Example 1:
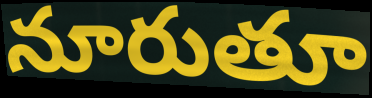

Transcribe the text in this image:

నూరుతూ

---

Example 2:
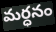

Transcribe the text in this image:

మర్ధనం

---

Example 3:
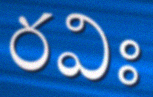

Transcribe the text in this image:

రవిః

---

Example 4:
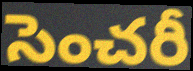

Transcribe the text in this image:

సెంచరీ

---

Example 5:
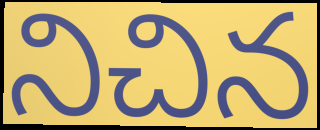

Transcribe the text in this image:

నిచిన